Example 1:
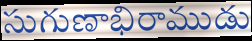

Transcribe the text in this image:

సుగుణాభిరాముడు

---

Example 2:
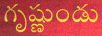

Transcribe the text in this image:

గృష్ణుండు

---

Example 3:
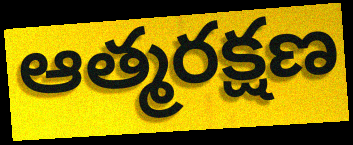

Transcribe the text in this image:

ఆత్మరక్షణ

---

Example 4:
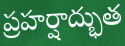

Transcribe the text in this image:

ప్రహర్షాద్భుత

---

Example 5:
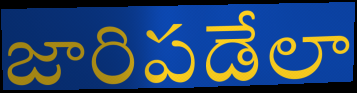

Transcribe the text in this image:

జారిపడేలా